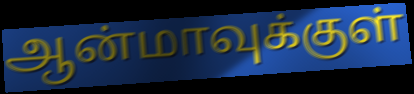
ஆன்மாவுக்குள்